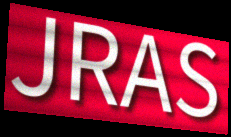
JRAS